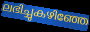
ലഭിച്ചുകഴിഞ്ഞേ